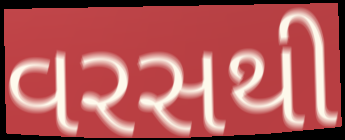
વરસથી